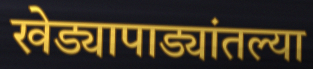
खेड्यापाड्यांतल्या